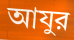
আযুর